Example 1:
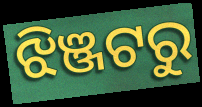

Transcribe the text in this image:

ଝିଞ୍ଜଟରୁ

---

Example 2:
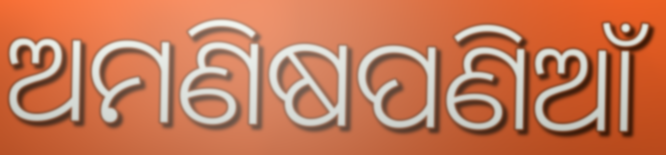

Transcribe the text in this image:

ଅମଣିଷପଣିଆଁ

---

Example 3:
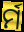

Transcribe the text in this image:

ର୍ମ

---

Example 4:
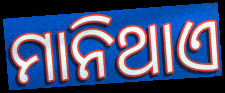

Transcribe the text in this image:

ମାନିଥାଏ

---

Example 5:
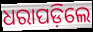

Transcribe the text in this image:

ଧରାପଡ଼ିଲେ